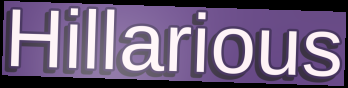
Hillarious